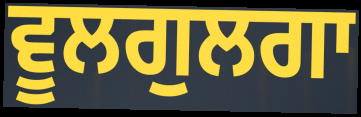
ਵੂਲਗੁਲਗਾ